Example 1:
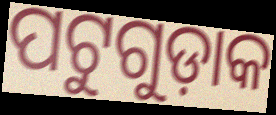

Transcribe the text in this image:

ପଟୁଗୁଡ଼ାକ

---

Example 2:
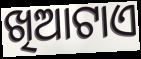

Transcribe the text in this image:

ଖିଆଟାଏ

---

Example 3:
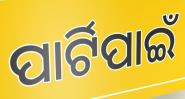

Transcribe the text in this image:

ପାର୍ଟିପାଇଁ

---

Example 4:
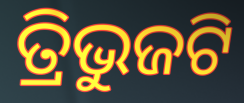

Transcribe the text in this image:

ତ୍ରିଭୁଜଟି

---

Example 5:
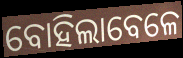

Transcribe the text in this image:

ବୋହିଲାବେଳେ